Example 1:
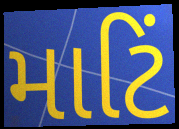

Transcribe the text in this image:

માટિં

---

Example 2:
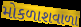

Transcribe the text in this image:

મોકળાશવાળા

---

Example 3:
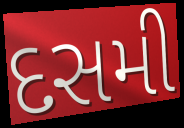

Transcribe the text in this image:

દસમી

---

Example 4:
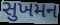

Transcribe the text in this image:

સુખમન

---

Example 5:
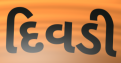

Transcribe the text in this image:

દિવડી